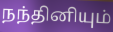
நந்தினியும்